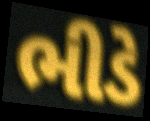
ભીડે